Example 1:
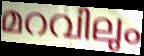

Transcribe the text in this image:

മറവിലും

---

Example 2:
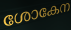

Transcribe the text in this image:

ശോകേന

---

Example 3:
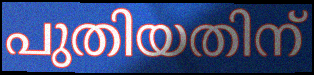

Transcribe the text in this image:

പുതിയതിന്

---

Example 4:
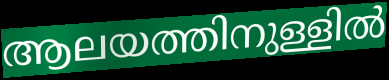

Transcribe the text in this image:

ആലയത്തിനുള്ളിൽ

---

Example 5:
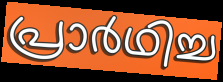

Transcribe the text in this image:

പ്രാർഥിച്ച